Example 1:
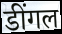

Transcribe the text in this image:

डींगल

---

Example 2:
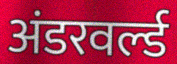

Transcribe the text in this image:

अंडरवर्ल्‍ड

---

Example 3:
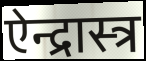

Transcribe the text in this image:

ऐन्द्रास्त्र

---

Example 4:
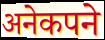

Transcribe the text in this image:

अनेकपने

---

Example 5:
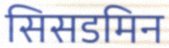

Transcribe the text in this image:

सिसडमिन